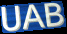
UAB